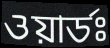
ওয়ার্ডঃ